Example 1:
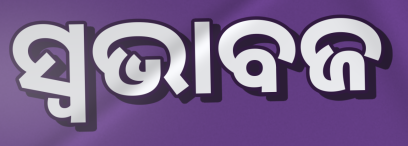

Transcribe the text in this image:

ସ୍ୱଭାବଜ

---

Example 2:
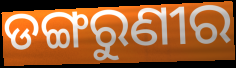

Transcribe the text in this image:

ଡଙ୍ଗରୁଣୀର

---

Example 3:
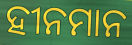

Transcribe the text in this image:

ହୀନମାନ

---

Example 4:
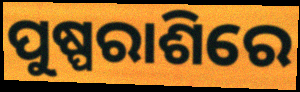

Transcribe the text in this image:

ପୁଷ୍ପରାଶିରେ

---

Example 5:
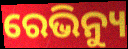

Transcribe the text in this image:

ରେଭିନ୍ୟୁ